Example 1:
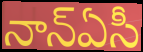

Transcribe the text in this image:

నాన్ఏసీ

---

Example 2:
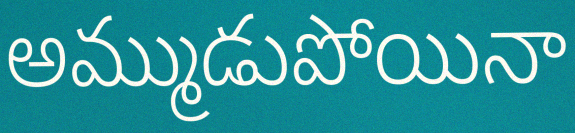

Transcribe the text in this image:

అమ్ముడుపోయినా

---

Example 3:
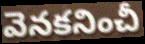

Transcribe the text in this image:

వెనకనించీ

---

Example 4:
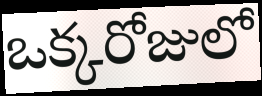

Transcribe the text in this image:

ఒక్కరోజులో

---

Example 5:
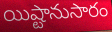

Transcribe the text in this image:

యిష్టానుసారం